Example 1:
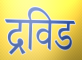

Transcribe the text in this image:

द्रविड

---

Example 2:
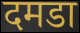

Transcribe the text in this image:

दमडा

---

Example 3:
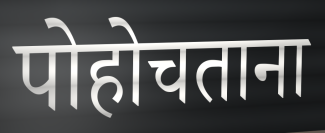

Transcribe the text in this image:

पोहोचताना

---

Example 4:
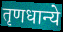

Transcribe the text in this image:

तृणधान्ये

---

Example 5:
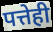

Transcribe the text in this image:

पत्तेही